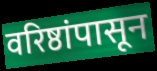
वरिष्ठांपासून